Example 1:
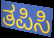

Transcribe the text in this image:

ತಪಿಸಿ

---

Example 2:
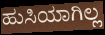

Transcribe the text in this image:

ಹುಸಿಯಾಗಿಲ್ಲ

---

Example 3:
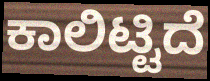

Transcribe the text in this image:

ಕಾಲಿಟ್ಟಿದೆ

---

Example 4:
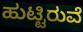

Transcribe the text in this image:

ಹುಟ್ಟಿರುವೆ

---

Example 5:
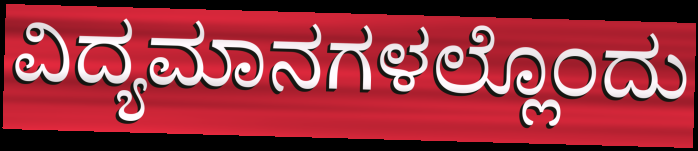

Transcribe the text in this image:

ವಿದ್ಯಮಾನಗಳಲ್ಲೊಂದು